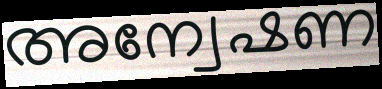
അന്വേഷണ